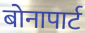
बोनापार्ट